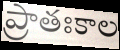
ప్రాతఃకాల